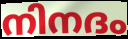
നിനദം